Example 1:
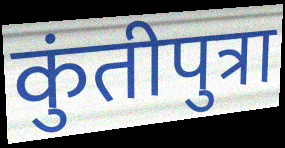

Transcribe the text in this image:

कुंतीपुत्रा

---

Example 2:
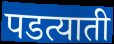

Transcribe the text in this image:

पडत्याती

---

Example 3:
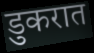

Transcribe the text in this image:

डुकरात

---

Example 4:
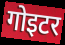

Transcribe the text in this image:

गोइटर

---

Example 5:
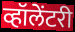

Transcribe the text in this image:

व्हॉलेंटरी